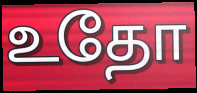
உதோ